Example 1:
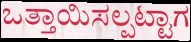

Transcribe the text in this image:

ಒತ್ತಾಯಿಸಲ್ಪಟ್ಟಾಗ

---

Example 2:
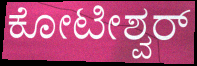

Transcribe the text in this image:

ಕೋಟೀಶ್ವರ್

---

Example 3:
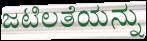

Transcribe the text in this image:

ಜಟಿಲತೆಯನ್ನು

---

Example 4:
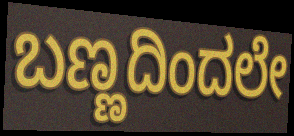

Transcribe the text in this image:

ಬಣ್ಣದಿಂದಲೇ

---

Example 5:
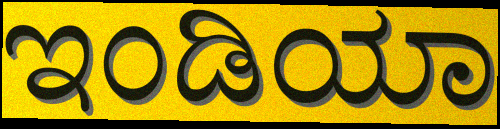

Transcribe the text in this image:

ಇಂಡಿಯಾ